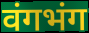
वंगभंग